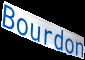
Bourdon